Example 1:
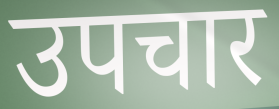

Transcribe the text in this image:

उपचार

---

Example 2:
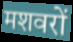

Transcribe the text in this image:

मशवरों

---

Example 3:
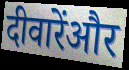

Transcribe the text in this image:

दीवारेंऔर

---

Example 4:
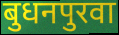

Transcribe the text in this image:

बुधनपुरवा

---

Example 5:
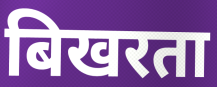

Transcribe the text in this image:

बिखरता